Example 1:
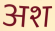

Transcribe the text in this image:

अश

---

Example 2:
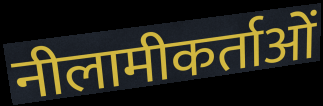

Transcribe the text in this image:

नीलामीकर्ताओं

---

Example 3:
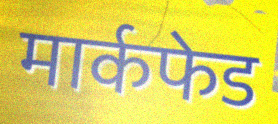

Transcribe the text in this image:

मार्कफेड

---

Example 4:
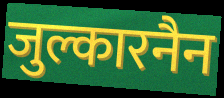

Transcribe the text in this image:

जुल्कारनैन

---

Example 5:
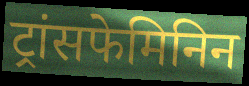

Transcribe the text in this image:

ट्रांसफेमिनिन